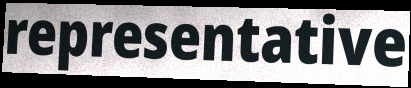
representative